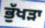
ਭੁੱਖੜਾ